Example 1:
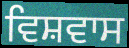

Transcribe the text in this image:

ਵਿਸ਼ਵਾਸ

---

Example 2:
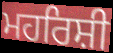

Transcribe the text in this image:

ਮਹਰਿਸ਼ੀ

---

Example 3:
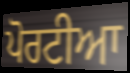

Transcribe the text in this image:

ਪੋਰਟੀਆ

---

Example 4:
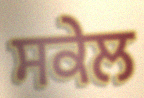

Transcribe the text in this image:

ਸਕੇਲ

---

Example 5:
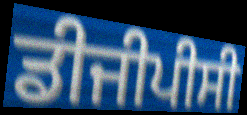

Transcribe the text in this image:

ਡੀਜੀਪੀਸੀ